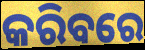
କରିବରେ